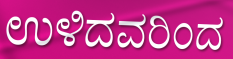
ಉಳಿದವರಿಂದ